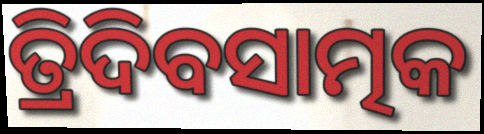
ତ୍ରିଦିବସାତ୍ମକ